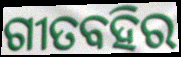
ଗୀତବହିର